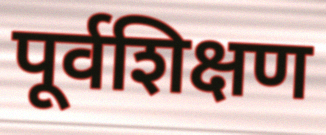
पूर्वशिक्षण